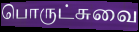
பொருட்சுவை